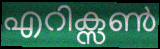
എറിക്സൺ